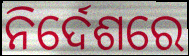
ନିର୍ଦେଶରେ